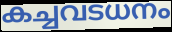
കച്ചവടധനം